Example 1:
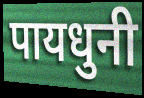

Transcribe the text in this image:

पायधुनी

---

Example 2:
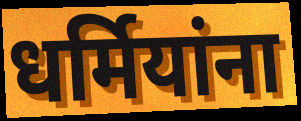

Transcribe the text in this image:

धर्मियांना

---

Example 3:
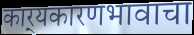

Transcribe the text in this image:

कार्यकारणभावाचा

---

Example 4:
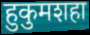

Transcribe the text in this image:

हुकुमशहा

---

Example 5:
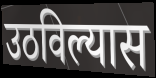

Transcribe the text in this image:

उठविल्यास